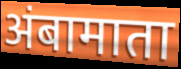
अंबामाता